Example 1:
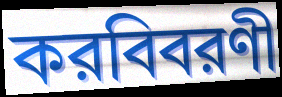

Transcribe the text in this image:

করবিবরণী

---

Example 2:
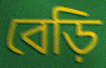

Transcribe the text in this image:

বেড়ি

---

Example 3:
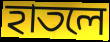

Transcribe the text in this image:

হাতলে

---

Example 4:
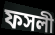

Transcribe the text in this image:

ফসলী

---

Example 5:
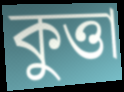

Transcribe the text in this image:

কুত্তা